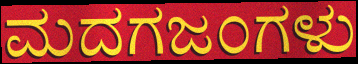
ಮದಗಜಂಗಳು